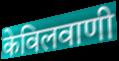
केविलवाणी